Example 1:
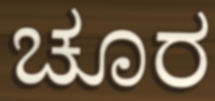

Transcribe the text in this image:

ಚೂರ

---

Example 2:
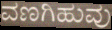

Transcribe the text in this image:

ವಣಗಿಹುವು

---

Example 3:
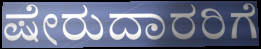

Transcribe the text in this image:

ಷೇರುದಾರರಿಗೆ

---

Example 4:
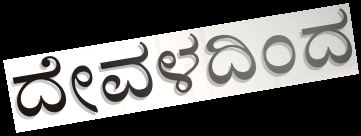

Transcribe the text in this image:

ದೇವಳದಿಂದ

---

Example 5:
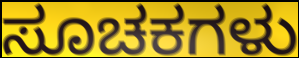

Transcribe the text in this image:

ಸೂಚಕಗಳು